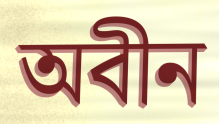
অবীন